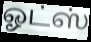
ஓட்ஸ்